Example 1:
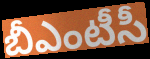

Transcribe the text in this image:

బీఎంటీసీ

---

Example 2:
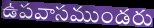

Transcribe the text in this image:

ఉపవాసముండరు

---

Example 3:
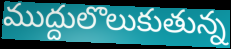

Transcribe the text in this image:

ముద్దులొలుకుతున్న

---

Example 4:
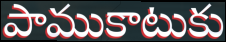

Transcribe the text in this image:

పాముకాటుకు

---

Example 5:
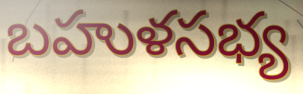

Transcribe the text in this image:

బహుళసభ్య